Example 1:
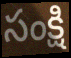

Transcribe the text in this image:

సంక్షి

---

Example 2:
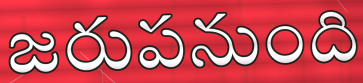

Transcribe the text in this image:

జరుపనుంది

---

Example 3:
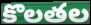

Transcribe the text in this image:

కొలతల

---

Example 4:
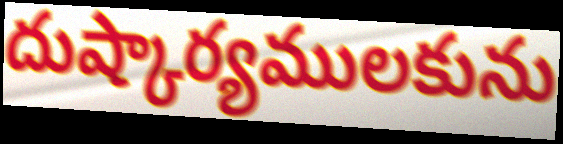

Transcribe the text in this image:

దుష్కార్యములకును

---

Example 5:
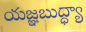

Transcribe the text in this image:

యజ్ఞబుద్ధ్యా